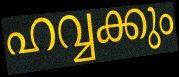
ഹവ്വക്കും